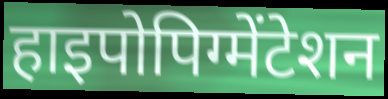
हाइपोपिग्मेंटेशन